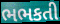
ભભકતી